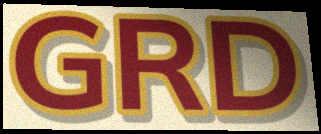
GRD